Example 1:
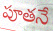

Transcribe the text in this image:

పూతనే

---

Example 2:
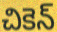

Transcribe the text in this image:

చికెన్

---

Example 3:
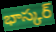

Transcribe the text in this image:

భాస్కర్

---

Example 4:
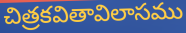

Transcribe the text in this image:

చిత్రకవితావిలాసము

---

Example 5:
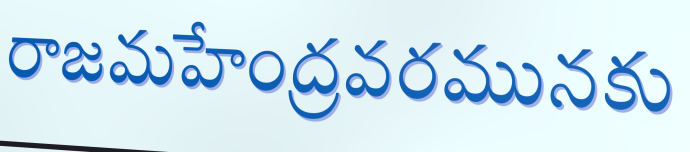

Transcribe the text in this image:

రాజమహేంద్రవరమునకు